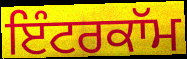
ਇੰਟਰਕਾੱਮ